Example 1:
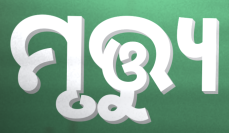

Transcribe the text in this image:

ମୃତ୍ତ୍ୟୁ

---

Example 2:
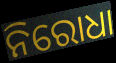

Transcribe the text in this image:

ନିରୋଧା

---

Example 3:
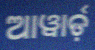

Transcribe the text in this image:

ଆୱାର୍ଡ଼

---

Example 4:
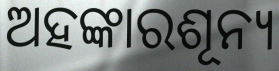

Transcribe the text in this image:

ଅହଙ୍କାରଶୂନ୍ୟ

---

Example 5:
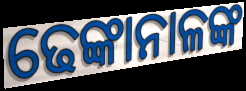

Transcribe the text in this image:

ଢେଙ୍କାନାଳଙ୍କ